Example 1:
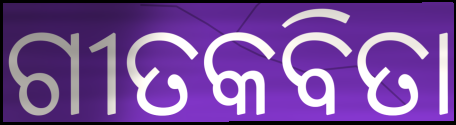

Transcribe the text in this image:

ଗୀତକବିତା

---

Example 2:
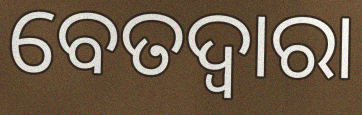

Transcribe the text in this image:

ବେତଦ୍ୱାରା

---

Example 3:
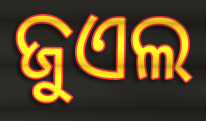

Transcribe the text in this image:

ଜୁଏଲ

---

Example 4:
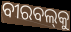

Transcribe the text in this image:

ବୀରବଲ୍‌କୁ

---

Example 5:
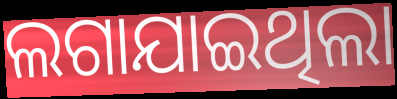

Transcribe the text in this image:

ଲଗାଯାଇଥିଲା